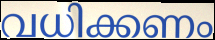
വധിക്കണം